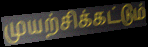
முயற்சிக்கட்டும்